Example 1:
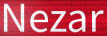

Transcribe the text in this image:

Nezar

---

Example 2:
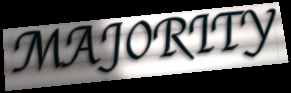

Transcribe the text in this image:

MAJORITY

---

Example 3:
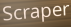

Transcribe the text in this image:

Scraper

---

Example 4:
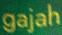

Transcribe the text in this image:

gajah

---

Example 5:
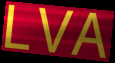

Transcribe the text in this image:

LVA